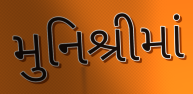
મુનિશ્રીમાં